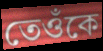
তেওঁকে